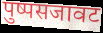
पुष्पसजावट